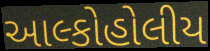
આલ્કોહોલીય